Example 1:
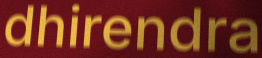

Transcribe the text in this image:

dhirendra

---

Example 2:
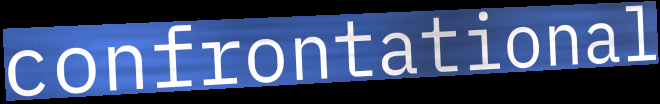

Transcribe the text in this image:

confrontational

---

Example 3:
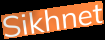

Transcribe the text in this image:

Sikhnet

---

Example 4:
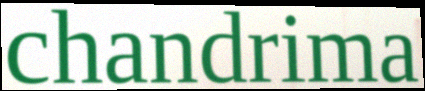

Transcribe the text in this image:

chandrima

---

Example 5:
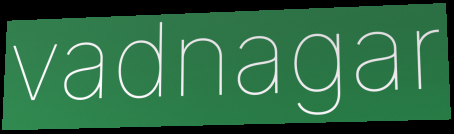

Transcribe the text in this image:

vadnagar